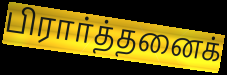
பிரார்த்தனைக்